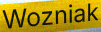
Wozniak